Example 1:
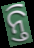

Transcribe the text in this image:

ନ୍ତି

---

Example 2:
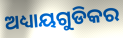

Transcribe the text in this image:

ଅଧ୍ୟାୟଗୁଡିକର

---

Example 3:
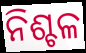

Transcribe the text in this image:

ନିଶ୍ଚଳ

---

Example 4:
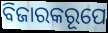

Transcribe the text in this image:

ବିଜାରକରୂପେ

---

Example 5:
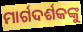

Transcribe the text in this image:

ମାର୍ଗଦର୍ଶକଙ୍କୁ